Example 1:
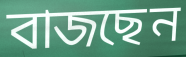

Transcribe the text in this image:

বাজছেন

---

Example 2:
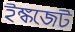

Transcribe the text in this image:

ইঙ্কজেট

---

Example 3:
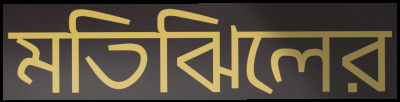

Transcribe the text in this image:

মতিঝিলের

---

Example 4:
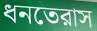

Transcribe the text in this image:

ধনতেরাস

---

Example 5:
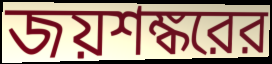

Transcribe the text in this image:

জয়শঙ্করের